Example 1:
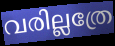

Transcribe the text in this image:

വരില്ലത്രേ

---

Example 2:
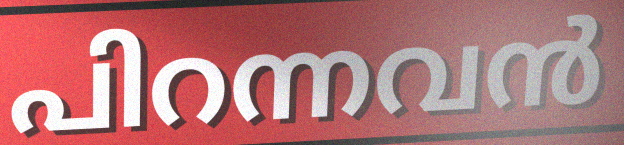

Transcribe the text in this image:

പിറന്നവൻ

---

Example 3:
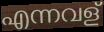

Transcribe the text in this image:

എന്നവള്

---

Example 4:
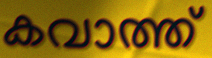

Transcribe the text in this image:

കവാത്ത്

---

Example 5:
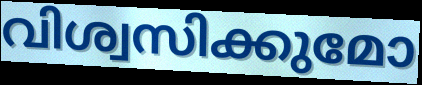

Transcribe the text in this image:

വിശ്വസിക്കുമോ